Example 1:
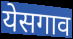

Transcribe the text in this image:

येसगाव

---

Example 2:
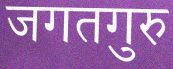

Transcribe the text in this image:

जगतगुरु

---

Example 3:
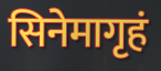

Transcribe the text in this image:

सिनेमागृहं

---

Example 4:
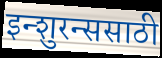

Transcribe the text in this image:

इन्शुरन्ससाठी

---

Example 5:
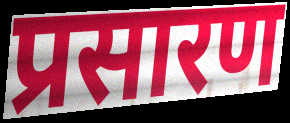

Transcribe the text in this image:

प्रसारण